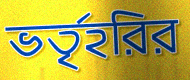
ভর্তৃহরির